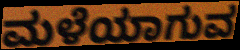
ಮಳೆಯಾಗುವ